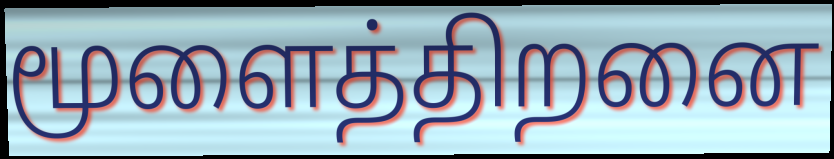
மூளைத்திறனை